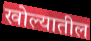
खोल्यातील